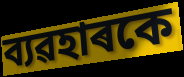
ব্যৱহাৰকে